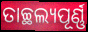
ତାଚ୍ଛଲ୍ୟପୂର୍ଣ୍ଣ